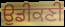
ਉਡੀਕਣੀ